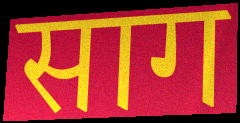
साग